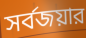
সর্বজয়ার